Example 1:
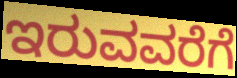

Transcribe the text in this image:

ಇರುವವರೆಗೆ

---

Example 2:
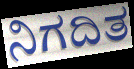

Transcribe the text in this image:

ನಿಗದಿತ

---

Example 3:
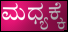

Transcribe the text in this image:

ಮಧ್ಯಕ್ಕೆ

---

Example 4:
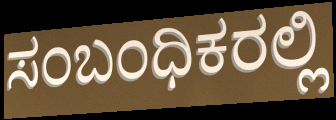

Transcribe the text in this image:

ಸಂಬಂಧಿಕರಲ್ಲಿ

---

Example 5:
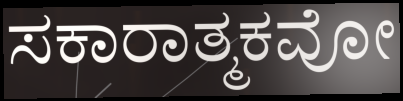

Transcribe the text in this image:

ಸಕಾರಾತ್ಮಕವೋ